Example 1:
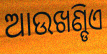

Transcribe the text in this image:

ଆଉଖଣ୍ଡିଏ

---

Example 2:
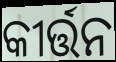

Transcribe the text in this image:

କୀର୍ତ୍ତନ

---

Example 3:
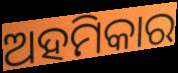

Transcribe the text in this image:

ଅହମିକାର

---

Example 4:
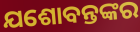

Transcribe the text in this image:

ଯଶୋବନ୍ତଙ୍କର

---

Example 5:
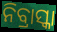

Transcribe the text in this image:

ନିବ୍ରାସ୍କା